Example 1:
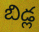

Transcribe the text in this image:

బిడ్ల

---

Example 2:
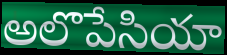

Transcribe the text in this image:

అలొపేసియా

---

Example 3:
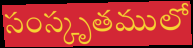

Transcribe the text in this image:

సంస్కృతములో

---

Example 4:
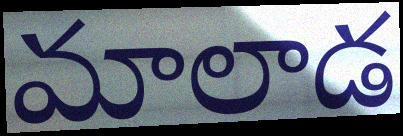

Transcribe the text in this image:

మాలాడ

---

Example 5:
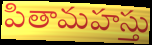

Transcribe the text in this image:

పితామహస్తు